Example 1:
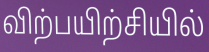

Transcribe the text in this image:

விற்பயிற்சியில்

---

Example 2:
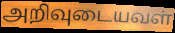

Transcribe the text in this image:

அறிவுடையவள்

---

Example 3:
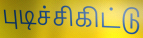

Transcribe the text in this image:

புடிச்சிகிட்டு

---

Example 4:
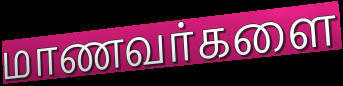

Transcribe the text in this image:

மாணவர்களை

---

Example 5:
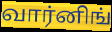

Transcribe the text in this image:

வார்னிங்